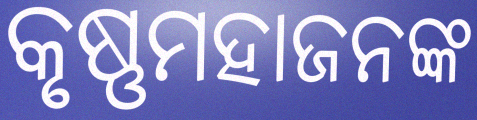
କୃଷ୍ଣମହାଜନଙ୍କ